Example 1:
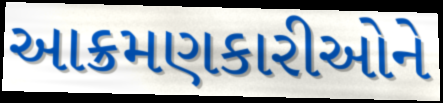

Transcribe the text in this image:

આક્રમણકારીઓને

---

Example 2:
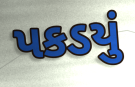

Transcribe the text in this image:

પકડયું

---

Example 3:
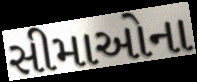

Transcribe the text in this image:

સીમાઓના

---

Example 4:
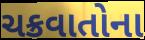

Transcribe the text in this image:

ચક્રવાતોના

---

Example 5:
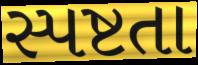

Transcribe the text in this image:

સ્પષ્ટતા